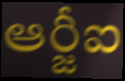
ఆర్జీఐ